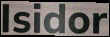
Isidor